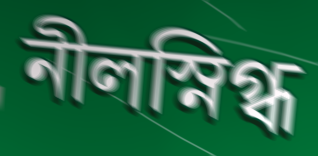
নীলস্নিগ্ধ